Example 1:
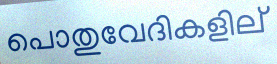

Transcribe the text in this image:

പൊതുവേദികളില്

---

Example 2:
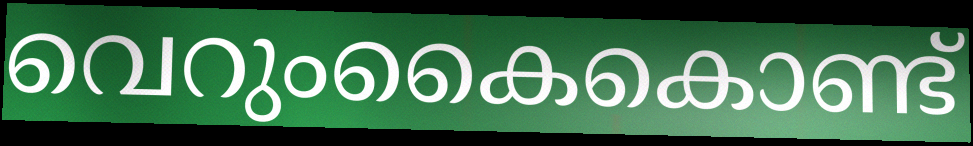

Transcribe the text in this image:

വെറുംകൈകൊണ്ട്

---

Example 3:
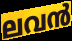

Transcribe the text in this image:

ലവൻ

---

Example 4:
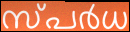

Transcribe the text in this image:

സ്പർധ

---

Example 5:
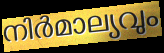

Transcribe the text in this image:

നിർമാല്യവും